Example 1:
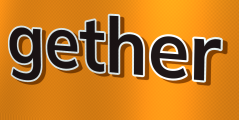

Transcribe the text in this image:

gether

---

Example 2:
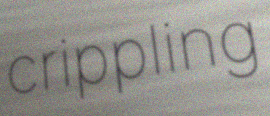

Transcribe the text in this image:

crippling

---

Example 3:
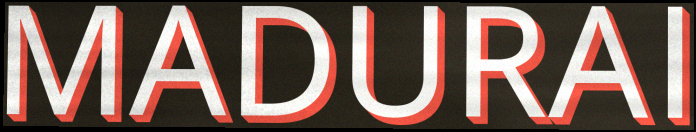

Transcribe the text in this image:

MADURAI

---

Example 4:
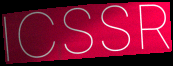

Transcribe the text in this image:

ICSSR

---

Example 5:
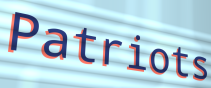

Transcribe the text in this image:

Patriots